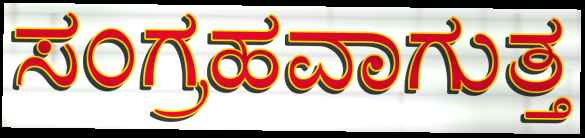
ಸಂಗ್ರಹವಾಗುತ್ತ